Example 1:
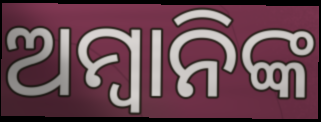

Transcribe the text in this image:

ଅମ୍ବାନିଙ୍କ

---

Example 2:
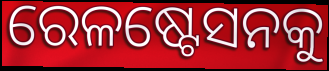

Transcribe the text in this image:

ରେଳଷ୍ଟେସନକୁ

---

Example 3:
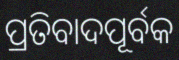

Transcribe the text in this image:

ପ୍ରତିବାଦପୂର୍ବକ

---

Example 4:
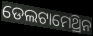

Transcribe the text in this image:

ଡେଲଟାମେଥ୍ରିନ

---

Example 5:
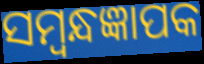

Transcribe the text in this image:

ସମ୍ବନ୍ଧଜ୍ଞାପକ